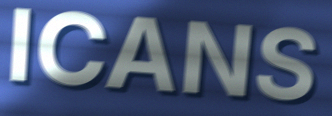
ICANS